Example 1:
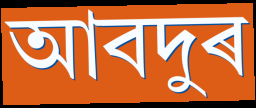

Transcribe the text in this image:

আবদুৰ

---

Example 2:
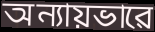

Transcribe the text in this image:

অন্যায়ভাৱে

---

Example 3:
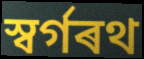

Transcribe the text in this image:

স্বৰ্গৰথ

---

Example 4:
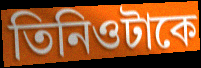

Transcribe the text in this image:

তিনিওটাকে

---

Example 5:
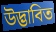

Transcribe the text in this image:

উদ্ভাবিত